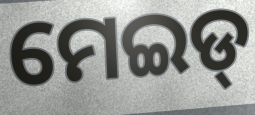
ମେଇଡ୍